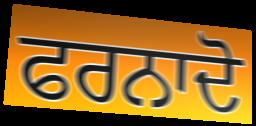
ਫਰਨਾਦੋ